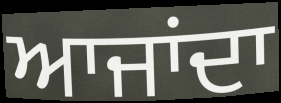
ਆਜਾਂਦਾ